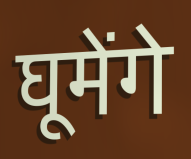
घूमेंगे